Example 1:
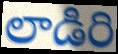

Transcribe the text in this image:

లాడిరి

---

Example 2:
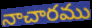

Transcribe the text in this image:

నాచారము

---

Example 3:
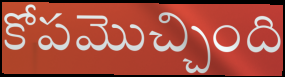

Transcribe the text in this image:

కోపమొచ్చింది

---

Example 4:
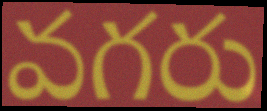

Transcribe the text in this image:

వగరు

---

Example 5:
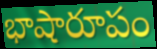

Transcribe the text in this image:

భాషారూపం